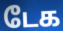
டேக